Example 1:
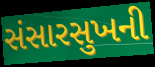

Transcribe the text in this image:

સંસારસુખની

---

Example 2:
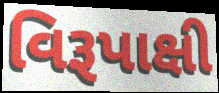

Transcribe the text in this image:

વિરૂપાક્ષી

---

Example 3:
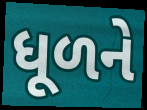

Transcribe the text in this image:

ધૂળને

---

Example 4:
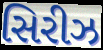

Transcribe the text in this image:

સિરીઝ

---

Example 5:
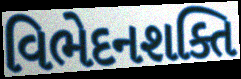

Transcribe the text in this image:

વિભેદનશક્તિ